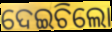
ଦେଇଚିଲୋ